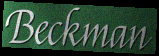
Beckman